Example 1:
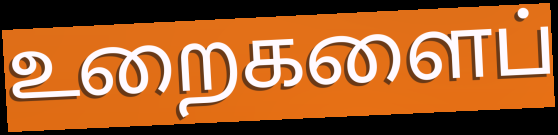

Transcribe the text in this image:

உறைகளைப்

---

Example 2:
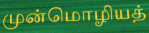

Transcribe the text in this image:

முன்மொழியத்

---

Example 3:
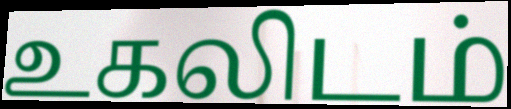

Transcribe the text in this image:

உகலிடம்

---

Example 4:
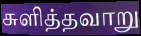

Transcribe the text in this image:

சுளித்தவாறு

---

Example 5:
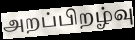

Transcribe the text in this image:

அறப்பிறழ்வு